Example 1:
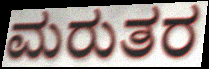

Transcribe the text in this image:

ಮರುತರ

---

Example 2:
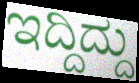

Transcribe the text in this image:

ಇದ್ದಿದ್ದು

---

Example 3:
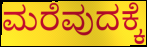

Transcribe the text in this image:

ಮರೆವುದಕ್ಕೆ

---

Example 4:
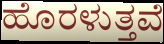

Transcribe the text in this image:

ಹೊರಳುತ್ತವೆ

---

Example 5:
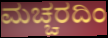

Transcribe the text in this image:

ಮಚ್ಚರದಿಂ